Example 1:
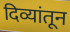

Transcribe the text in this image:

दिव्यांतून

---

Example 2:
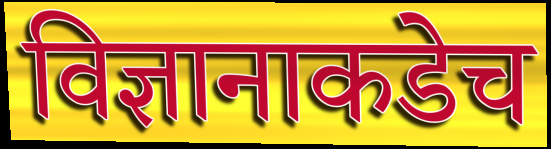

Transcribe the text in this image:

विज्ञानाकडेच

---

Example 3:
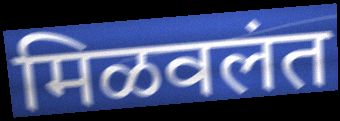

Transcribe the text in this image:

मिळवलंत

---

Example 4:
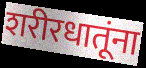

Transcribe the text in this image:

शरीरधातूंना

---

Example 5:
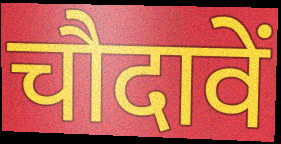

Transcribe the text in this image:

चौदावें